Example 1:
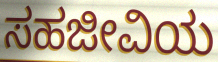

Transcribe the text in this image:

ಸಹಜೀವಿಯ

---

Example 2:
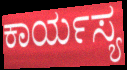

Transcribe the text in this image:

ಕಾರ್ಯಸ್ಯ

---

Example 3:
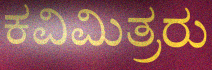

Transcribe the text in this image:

ಕವಿಮಿತ್ರರು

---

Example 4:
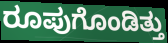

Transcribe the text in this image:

ರೂಪುಗೊಂಡಿತ್ತು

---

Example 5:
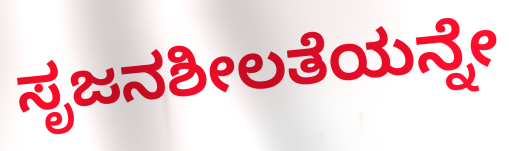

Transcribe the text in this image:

ಸೃಜನಶೀಲತೆಯನ್ನೇ